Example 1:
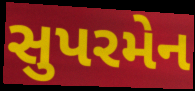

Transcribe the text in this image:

સુપરમેન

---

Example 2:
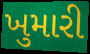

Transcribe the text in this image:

ખુમારી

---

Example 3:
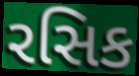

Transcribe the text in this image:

રસિક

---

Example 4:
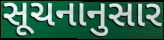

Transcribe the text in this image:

સૂચનાનુસાર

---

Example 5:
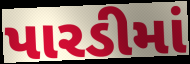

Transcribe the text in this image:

પારડીમાં